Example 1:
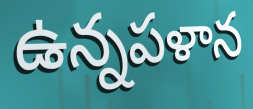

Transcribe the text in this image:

ఉన్నపళాన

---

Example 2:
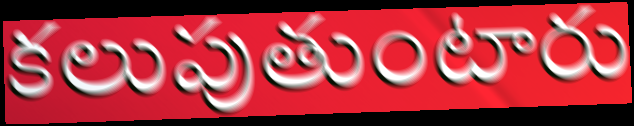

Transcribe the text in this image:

కలుపుతుంటారు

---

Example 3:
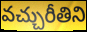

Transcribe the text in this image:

వచ్చురీతిని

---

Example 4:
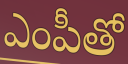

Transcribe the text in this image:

ఎంపీతో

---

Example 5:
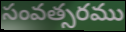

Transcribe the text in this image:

సంవత్సరము